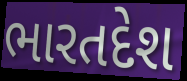
ભારતદેશ